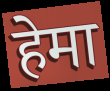
हेमा